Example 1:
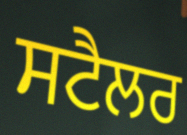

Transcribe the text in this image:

ਸਟੈਲਰ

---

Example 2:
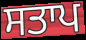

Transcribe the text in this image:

ਸਤਾਪ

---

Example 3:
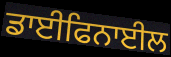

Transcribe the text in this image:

ਡਾਈਫਿਨਾਈਲ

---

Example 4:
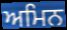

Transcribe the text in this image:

ਅਮਿਨ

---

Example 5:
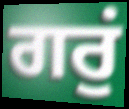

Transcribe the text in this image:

ਗਰੁਂ